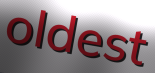
oldest